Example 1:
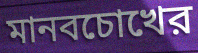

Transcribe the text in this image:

মানবচোখের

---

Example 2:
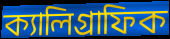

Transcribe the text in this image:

ক্যালিগ্রাফিক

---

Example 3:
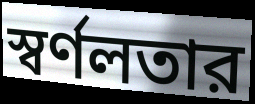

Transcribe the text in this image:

স্বর্ণলতার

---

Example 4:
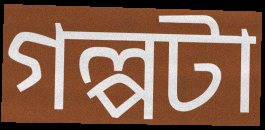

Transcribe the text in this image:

গল্পটা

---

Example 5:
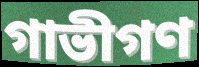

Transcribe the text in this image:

গাভীগণ